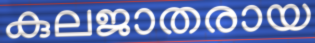
കുലജാതരായ